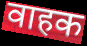
वाहक